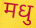
मधु